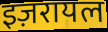
इज़रायल